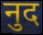
नुद